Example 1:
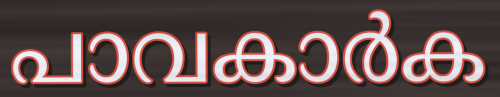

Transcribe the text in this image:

പാവകാർക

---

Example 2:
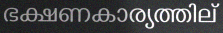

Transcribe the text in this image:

ഭക്ഷണകാര്യത്തില്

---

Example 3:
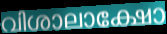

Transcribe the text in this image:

വിശാലാക്ഷോ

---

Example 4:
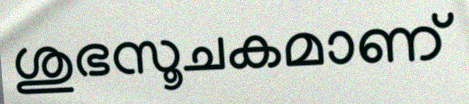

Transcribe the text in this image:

ശുഭസൂചകമാണ്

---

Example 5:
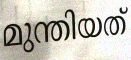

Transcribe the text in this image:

മുന്തിയത്